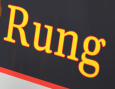
Rung